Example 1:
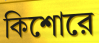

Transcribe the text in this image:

কিশোরে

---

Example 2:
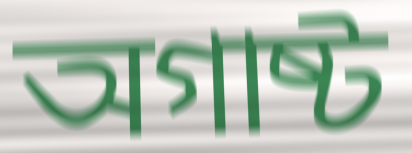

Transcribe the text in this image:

অগাষ্ট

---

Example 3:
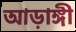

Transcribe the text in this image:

আড়াঙ্গী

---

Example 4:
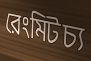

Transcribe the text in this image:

রেংমিটচ্য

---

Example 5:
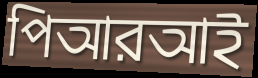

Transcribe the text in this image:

পিআরআই